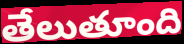
తేలుతూంది